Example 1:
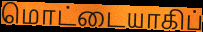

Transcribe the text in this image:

மொட்டையாகிப்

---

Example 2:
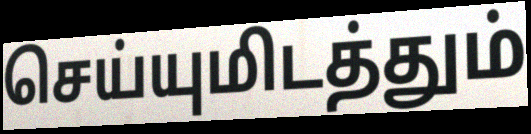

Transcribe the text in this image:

செய்யுமிடத்தும்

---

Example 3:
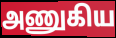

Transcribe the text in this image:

அணுகிய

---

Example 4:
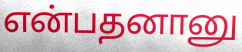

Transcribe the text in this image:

என்பதனானு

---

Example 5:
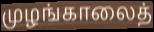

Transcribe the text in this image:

முழங்காலைத்